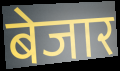
बेजार